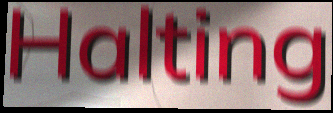
Halting